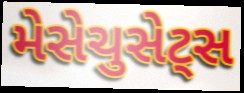
મેસેચુસેટ્સ